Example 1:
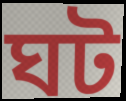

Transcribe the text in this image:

ঘট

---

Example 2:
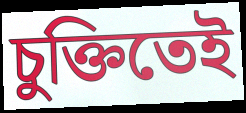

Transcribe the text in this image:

চুক্তিতেই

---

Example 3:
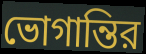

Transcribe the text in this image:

ভোগান্তির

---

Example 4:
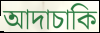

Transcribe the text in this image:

আদাচাকি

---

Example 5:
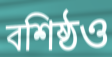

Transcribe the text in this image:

বশিষ্ঠও